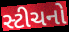
સ્ટીચનો